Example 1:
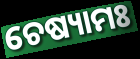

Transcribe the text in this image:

ଚେଷ୍ୟାମଃ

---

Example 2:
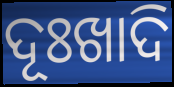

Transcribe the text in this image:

ଦୂଃଖାଦି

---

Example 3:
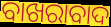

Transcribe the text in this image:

ବାଖରାବାଦ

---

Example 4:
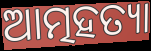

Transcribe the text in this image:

ଆତ୍ମହତ୍ୟା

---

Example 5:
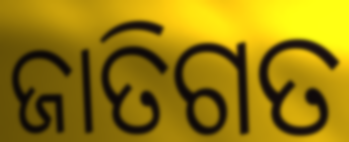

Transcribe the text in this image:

ଜାତିଗତ